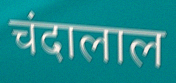
चंदालाल